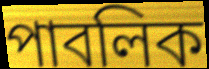
পাবলিক